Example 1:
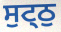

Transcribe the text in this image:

ਸੁਟ੍ਠੁ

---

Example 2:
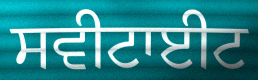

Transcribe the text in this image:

ਸਵੀਟਾਈਟ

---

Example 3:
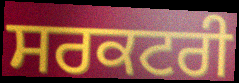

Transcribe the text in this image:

ਸਰਕਟਰੀ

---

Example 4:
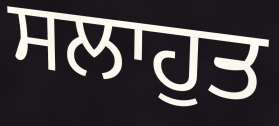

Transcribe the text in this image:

ਸਲਾਹੁਤ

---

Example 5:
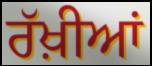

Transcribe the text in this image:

ਰੱਖ਼ੀਆਂ